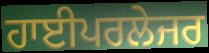
ਹਾਈਪਰਲੇਜਰ